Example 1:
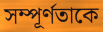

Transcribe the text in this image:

সম্পূর্ণতাকে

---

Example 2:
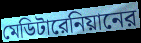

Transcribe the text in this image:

মেডিটারেনিয়ানের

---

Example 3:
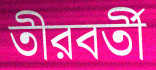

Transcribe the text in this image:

তীরবর্তী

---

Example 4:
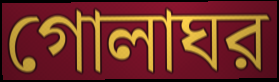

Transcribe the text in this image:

গোলাঘর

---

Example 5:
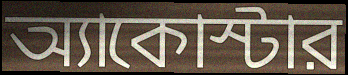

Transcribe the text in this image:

অ্যাকোস্টার